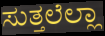
ಸುತ್ತಲೆಲ್ಲಾ